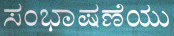
ಸಂಭಾಷಣೆಯು